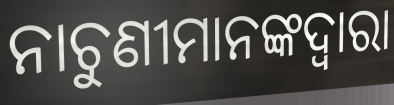
ନାଚୁଣୀମାନଙ୍କଦ୍ୱାରା